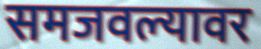
समजवल्यावर